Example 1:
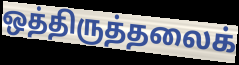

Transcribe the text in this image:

ஒத்திருத்தலைக்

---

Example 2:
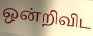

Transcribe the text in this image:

ஒன்றிவிட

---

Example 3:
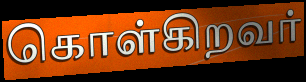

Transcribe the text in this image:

கொள்கிறவர்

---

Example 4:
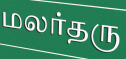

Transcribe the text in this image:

மலர்தரு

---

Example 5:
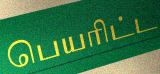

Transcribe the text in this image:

பெயரிட்ட